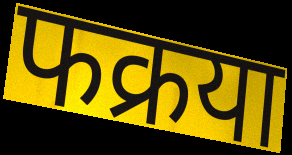
फक्रया